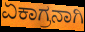
ಏಕಾಗ್ರನಾಗಿ